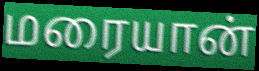
மரையான்